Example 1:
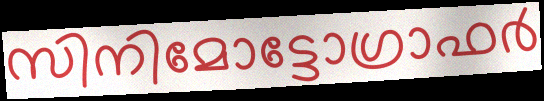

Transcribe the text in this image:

സിനിമോട്ടോഗ്രാഫർ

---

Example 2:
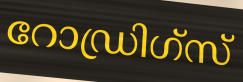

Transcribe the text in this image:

റോഡ്രിഗ്സ്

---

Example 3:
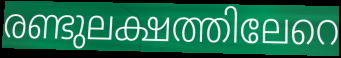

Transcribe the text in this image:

രണ്ടുലക്ഷത്തിലേറെ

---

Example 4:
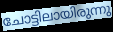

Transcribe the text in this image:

ചോട്ടിലായിരുന്നു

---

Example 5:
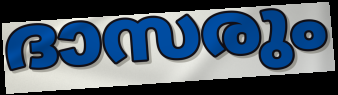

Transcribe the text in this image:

ദാസരും